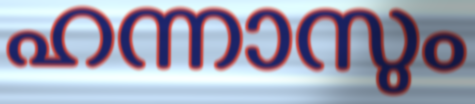
ഹന്നാസും